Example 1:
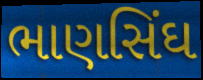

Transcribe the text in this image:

ભાણસિંઘ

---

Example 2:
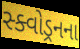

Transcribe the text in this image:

સ્ક્વોડ્રનના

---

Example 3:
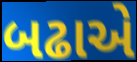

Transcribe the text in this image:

બઢાએ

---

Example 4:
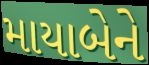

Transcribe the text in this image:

માયાબેને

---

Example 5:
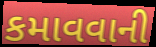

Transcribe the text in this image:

કમાવવાની